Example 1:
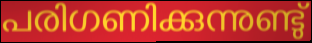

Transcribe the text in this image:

പരിഗണിക്കുന്നുണ്ടു്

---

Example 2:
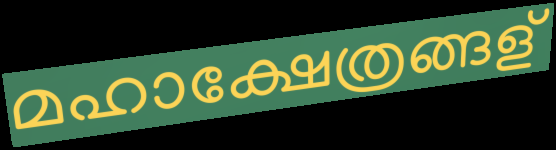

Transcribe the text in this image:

മഹാക്ഷേത്രങ്ങള്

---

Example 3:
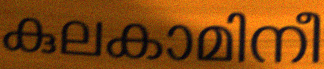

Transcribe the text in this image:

കുലകാമിനീ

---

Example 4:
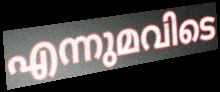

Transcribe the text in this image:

എന്നുമവിടെ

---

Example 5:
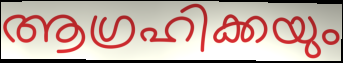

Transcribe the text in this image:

ആഗ്രഹിക്കയും